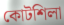
কোটশিলা